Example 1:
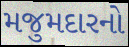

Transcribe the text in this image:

મજુમદારનો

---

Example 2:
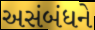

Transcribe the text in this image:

અસંબંધને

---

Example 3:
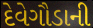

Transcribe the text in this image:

દેવેગૌડાની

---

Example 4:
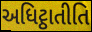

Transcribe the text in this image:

અધિટ્ઠાતીતિ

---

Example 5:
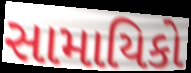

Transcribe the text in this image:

સામાયિકો